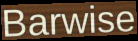
Barwise